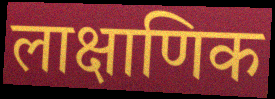
लाक्षाणिक